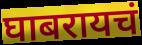
घाबरायचं